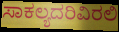
ಸಾಕಲ್ಯದರಿವಿರಲಿ